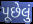
પૂછેલું